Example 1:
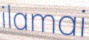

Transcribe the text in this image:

ilamai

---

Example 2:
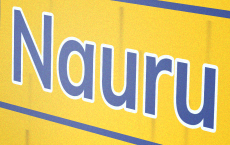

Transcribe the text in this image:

Nauru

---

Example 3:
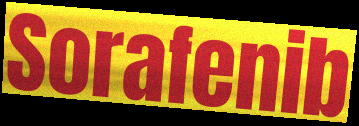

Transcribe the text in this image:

Sorafenib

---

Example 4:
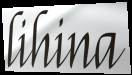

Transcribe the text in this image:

lihina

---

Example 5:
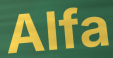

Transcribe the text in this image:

Alfa